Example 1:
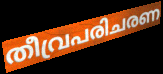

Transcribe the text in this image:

തീവ്രപരിചരണ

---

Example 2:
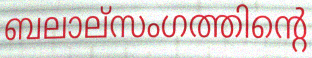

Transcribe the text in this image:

ബലാല്സംഗത്തിന്റെ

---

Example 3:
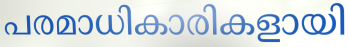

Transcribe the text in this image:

പരമാധികാരികളായി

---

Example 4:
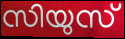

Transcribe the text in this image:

സിയുസ്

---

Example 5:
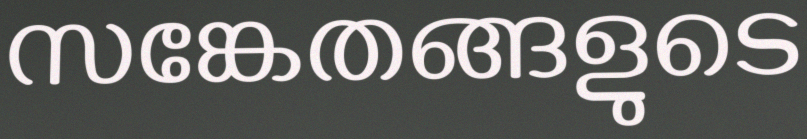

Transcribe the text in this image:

സങ്കേതങ്ങളുടെ